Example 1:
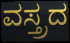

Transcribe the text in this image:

ವಸ್ತ್ರದ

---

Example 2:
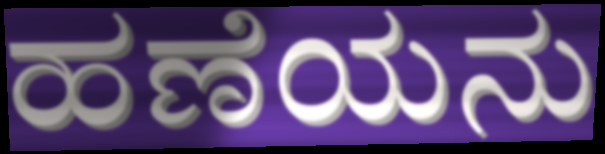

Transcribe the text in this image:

ಹಣೆಯನು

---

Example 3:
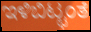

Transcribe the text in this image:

ಇಳಿಬಿಟ್ಟಂತೆ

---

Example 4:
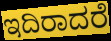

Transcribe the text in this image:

ಇದಿರಾದರೆ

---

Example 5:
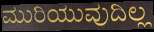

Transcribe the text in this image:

ಮುರಿಯುವುದಿಲ್ಲ